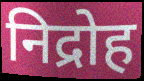
निद्रोह